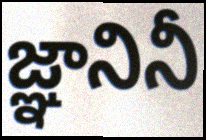
జ్ఞానినీ